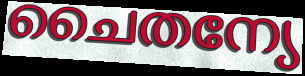
ചൈതന്യേ